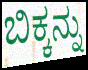
ಬಿಕ್ಕನ್ನು